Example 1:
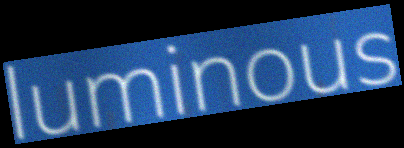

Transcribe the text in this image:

luminous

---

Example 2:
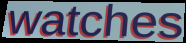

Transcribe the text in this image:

watches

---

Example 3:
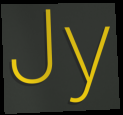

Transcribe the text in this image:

Jy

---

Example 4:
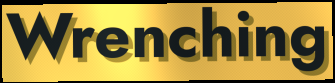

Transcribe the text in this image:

Wrenching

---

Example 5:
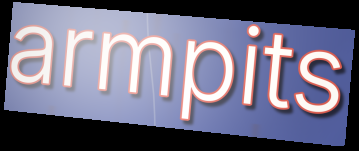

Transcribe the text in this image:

armpits